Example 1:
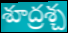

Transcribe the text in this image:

శూద్రశ్చ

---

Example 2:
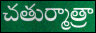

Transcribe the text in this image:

చతుర్మాత్రా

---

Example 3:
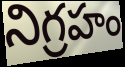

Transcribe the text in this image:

నిగ్రహం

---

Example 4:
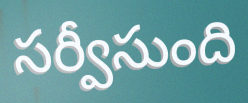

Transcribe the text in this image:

సర్వీసుంది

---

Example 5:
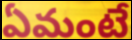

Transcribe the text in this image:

ఏమంటే